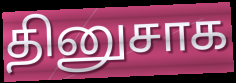
தினுசாக